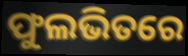
ଫୁଲଭିତରେ